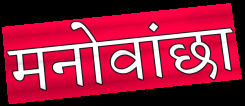
मनोवांछा